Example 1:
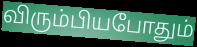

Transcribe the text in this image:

விரும்பியபோதும்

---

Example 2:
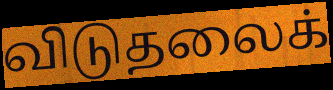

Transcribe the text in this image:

விடுதலைக்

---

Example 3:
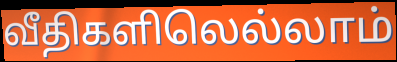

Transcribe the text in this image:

வீதிகளிலெல்லாம்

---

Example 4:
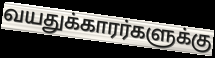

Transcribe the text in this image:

வயதுக்காரர்களுக்கு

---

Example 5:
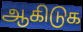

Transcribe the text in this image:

ஆகிடுக